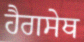
ਹੈਗਸੇਥ